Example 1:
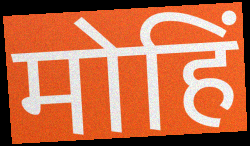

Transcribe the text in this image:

मोहिं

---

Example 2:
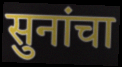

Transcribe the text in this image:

सुनांचा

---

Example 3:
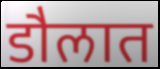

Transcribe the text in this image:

डौलात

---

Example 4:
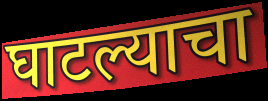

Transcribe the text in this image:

घाटल्याचा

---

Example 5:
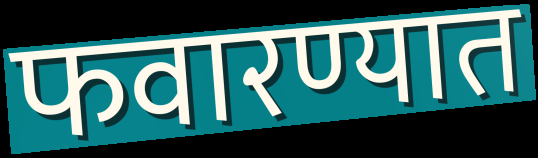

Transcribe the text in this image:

फवारण्यात